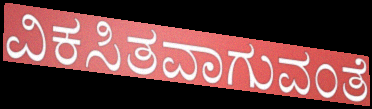
ವಿಕಸಿತವಾಗುವಂತೆ